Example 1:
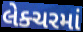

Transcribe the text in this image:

લેક્ચરમાં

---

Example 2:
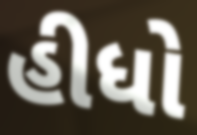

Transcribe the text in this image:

હીધો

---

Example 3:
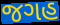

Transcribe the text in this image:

જગહ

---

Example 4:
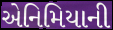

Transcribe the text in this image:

એનિમિયાની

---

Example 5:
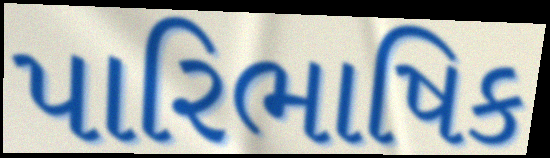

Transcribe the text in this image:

પારિભાષિક